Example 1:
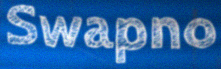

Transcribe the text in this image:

Swapno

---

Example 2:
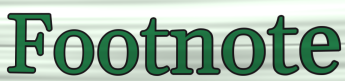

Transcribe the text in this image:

Footnote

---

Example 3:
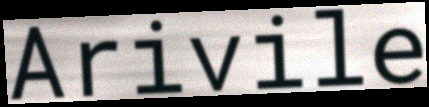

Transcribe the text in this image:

Arivile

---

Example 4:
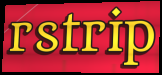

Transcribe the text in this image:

rstrip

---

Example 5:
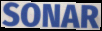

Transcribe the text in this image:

SONAR